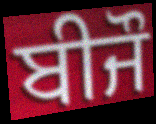
ਬੀਜੌ